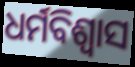
ଧର୍ମବିଶ୍ୱାସ